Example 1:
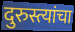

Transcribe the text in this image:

दुरुस्त्यांचा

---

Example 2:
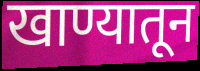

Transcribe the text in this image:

खाण्यातून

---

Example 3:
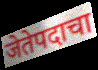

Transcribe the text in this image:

जेतेपदाचा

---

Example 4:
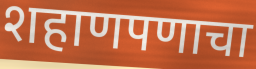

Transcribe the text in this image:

शहाणपणाचा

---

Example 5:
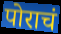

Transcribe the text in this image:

पोराचं